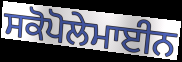
ਸਕੋਪੋਲੇਮਾਈਨ